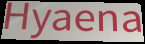
Hyaena